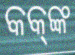
କକ୍‌ଙ୍କ